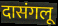
दासंगलू